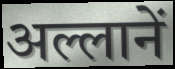
अल्लानें